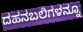
ದಹನಬಲಿಗಳನ್ನೂ